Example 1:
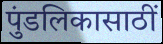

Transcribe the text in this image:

पुंडलिकासाठीं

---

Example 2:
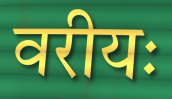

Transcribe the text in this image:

वरीयः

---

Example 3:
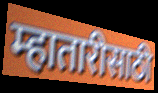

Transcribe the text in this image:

म्हातारीसाठी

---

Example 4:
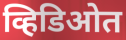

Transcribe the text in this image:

व्हिडिओत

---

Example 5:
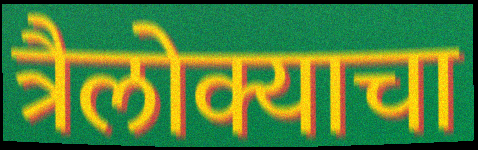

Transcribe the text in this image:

त्रैलोक्याचा